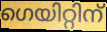
ഗെയിറ്റിന്